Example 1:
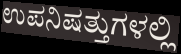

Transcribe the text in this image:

ಉಪನಿಷತ್ತುಗಳಲ್ಲಿ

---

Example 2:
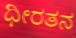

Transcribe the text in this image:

ಧೀರತನ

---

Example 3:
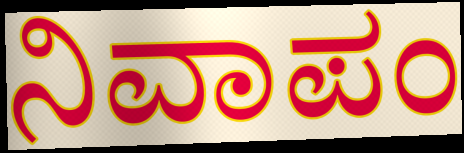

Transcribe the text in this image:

ನಿವಾಪಂ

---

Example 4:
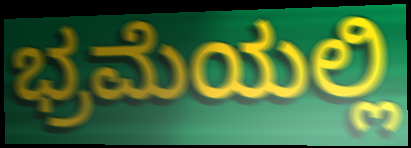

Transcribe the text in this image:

ಭ್ರಮೆಯಲ್ಲಿ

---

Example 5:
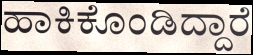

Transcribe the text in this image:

ಹಾಕಿಕೊಂಡಿದ್ದಾರೆ